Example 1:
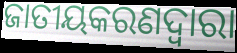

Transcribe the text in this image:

ଜାତୀୟକରଣଦ୍ୱାରା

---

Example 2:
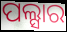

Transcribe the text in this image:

ପଲ୍ସାର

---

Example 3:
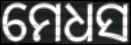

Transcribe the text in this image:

ମେଧସ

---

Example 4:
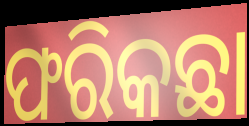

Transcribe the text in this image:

ଫରିକଛା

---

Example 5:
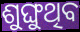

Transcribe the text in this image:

ଶୁଙ୍ଘୁଥିବ